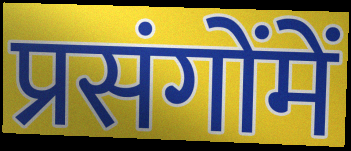
प्रसंगोंमें